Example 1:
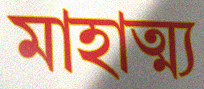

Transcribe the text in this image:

মাহাত্ম্য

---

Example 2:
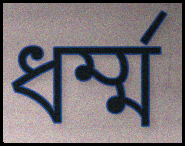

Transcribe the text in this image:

ধৰ্ম্ম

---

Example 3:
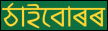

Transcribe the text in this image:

ঠাইবোৰৰ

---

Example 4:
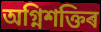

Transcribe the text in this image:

অগ্নিশক্তিৰ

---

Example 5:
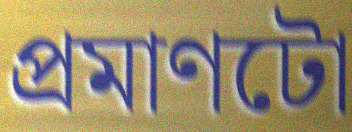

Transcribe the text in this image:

প্ৰমাণটো